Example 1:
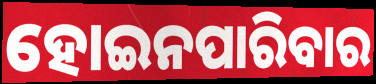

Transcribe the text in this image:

ହୋଇନପାରିବାର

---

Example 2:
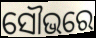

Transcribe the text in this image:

ସୌଭରେ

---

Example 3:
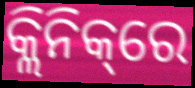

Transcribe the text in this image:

କ୍ଲିନିକ୍‌ରେ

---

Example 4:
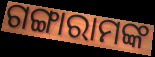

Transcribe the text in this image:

ଗଙ୍ଗାରାମଙ୍କ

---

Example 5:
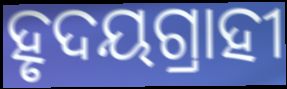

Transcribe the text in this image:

ହୃଦୟଗ୍ରାହୀ